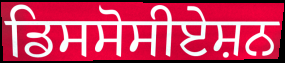
ਡਿਸਸੋਸੀਏਸ਼ਨ